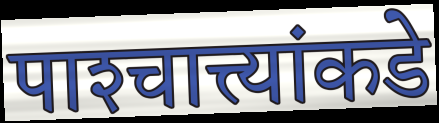
पाश्चात्त्यांकडे